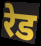
रेड